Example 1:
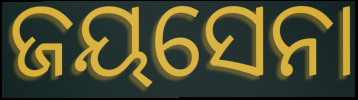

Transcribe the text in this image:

ଜୟସେନା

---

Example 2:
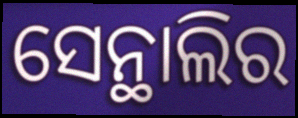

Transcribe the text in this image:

ସେନ୍ଥାଲିର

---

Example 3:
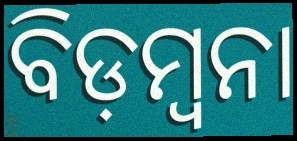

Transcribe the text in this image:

ବିଡ଼ମ୍ୱନା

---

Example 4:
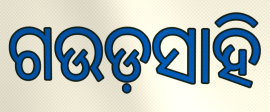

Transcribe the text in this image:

ଗଉଡ଼ସାହି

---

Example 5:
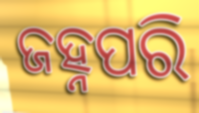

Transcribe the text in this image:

ଜହ୍ନପରି